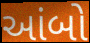
આંબો